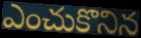
ఎంచుకొనిన